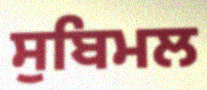
ਸੁਬਿਮਲ